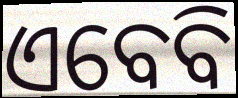
ଏବେବି